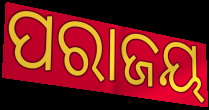
ପରାଜୟ